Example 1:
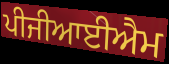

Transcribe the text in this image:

ਪੀਜੀਆਈਐਮ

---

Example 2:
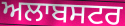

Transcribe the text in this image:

ਅਲਾਬਸਟਰ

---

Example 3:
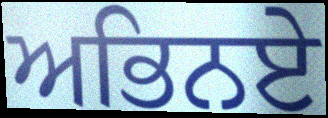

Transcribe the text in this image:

ਅਭਿਨਏ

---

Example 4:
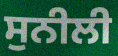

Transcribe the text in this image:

ਸੁਨੀਲੀ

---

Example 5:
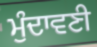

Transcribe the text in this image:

ਮੁੰਦਾਵਣੀ